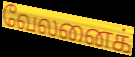
வேலனைக்